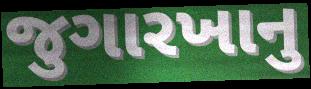
જુગારખાનુ